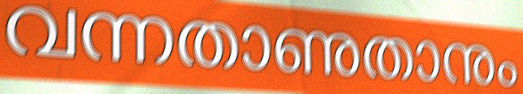
വന്നതാണുതാനും